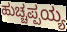
ಹುಚ್ಚಪ್ಪಯ್ಯ